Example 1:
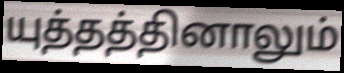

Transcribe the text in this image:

யுத்தத்தினாலும்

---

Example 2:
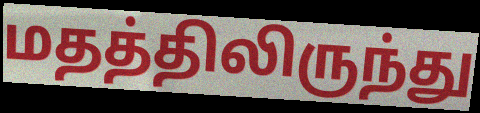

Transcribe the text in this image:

மதத்திலிருந்து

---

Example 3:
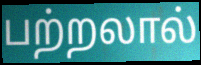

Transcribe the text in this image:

பற்றலால்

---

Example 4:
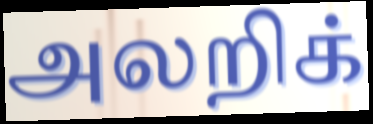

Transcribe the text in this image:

அலறிக்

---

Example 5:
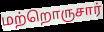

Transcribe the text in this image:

மற்றொருசார்